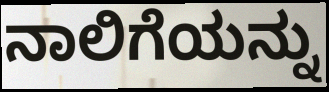
ನಾಲಿಗೆಯನ್ನು